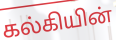
கல்கியின்